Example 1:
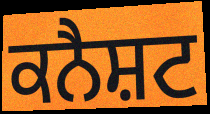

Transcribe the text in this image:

ਕਨੈਸ਼ਟ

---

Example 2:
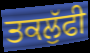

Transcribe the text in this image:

ਤਕਲੁੱਫੀ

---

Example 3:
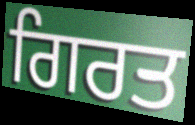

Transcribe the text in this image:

ਗਿਰਤ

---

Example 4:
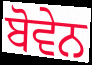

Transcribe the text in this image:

ਬੋਵੇਨ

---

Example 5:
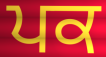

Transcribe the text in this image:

ਪਕ